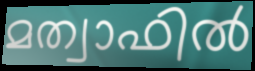
മത്വാഫിൽ